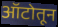
ऑटोतून